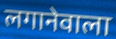
लगानेवाला